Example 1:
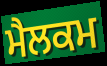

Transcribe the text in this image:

ਮੈਲਕਮ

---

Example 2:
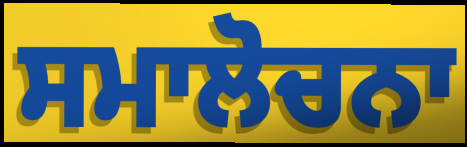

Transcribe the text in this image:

ਸਮਾਲੋਚਨਾ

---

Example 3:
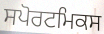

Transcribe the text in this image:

ਸਪੋਰਟਮਿਕਸ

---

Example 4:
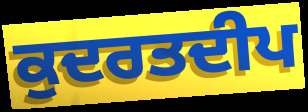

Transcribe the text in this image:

ਕੁਦਰਤਦੀਪ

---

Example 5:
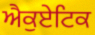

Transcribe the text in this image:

ਐਕੁਏਟਿਕ